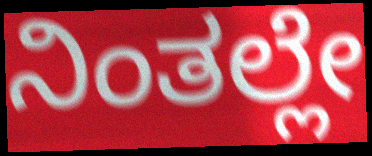
ನಿಂತಲ್ಲೇ